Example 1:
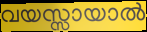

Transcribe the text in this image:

വയസ്സായാൽ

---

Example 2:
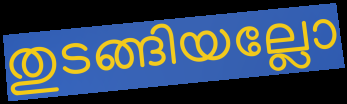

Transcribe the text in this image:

തുടങ്ങിയല്ലോ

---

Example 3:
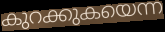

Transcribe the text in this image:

കുറക്കുകയെന്ന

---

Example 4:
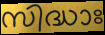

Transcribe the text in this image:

സിദ്ധാഃ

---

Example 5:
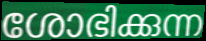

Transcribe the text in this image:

ശോഭിക്കുന്ന